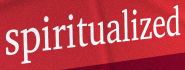
spiritualized